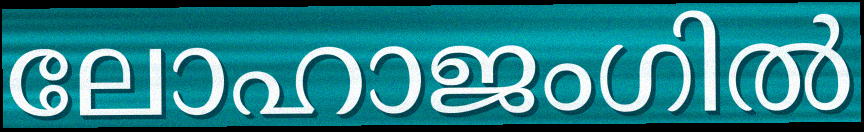
ലോഹാജംഗിൽ